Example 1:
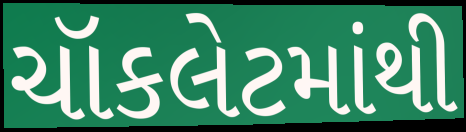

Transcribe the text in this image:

ચૉકલેટમાંથી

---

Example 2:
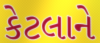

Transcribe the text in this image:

કેટલાને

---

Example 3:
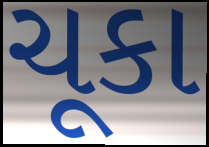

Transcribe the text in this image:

ચૂકા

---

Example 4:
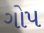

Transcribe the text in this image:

ગોપ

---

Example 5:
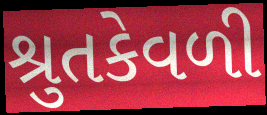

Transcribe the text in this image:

શ્રુતકેવળી